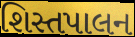
શિસ્તપાલન